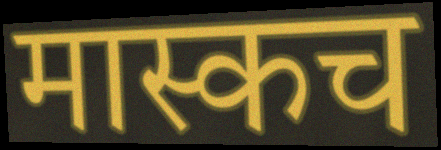
मास्कच